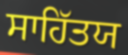
ਸਾਹਿੱਤਯ